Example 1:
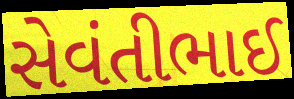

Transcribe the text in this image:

સેવંતીભાઈ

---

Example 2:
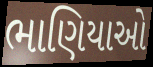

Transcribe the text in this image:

ભાણિયાઓ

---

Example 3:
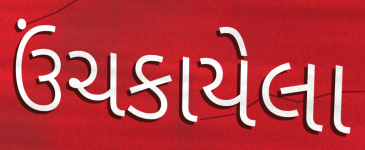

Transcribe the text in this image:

ઉંચકાયેલા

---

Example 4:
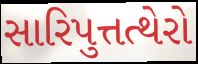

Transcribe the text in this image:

સારિપુત્તત્થેરો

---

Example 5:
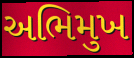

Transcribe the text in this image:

અભિમુખ